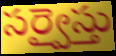
సర్వైస్తు